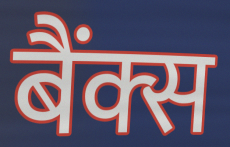
बैंक्‍स